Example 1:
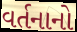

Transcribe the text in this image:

વર્તનાનો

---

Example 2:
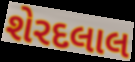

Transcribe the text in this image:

શેરદલાલ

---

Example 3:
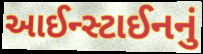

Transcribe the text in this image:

આઈન્સ્ટાઈનનું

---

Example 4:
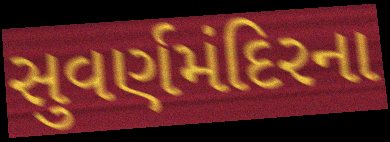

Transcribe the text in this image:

સુવર્ણમંદિરના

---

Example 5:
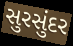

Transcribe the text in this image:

સુરસુંદર